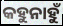
କହୁନାହୁଁ